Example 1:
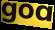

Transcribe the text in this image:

goa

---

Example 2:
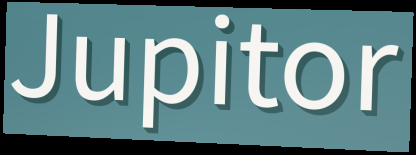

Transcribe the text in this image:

Jupitor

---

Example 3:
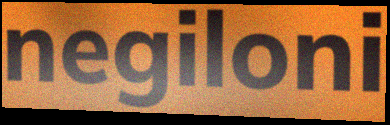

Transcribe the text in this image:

negiloni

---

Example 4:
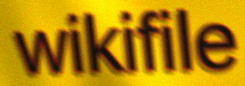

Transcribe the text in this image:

wikifile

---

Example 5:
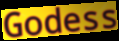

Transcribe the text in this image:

Godess